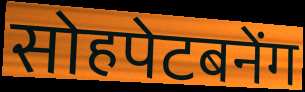
सोहपेटबनेंग